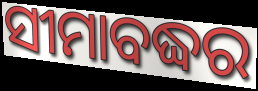
ସୀମାବଦ୍ଧର